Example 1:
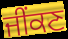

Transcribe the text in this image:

ਜੀਂਕਣ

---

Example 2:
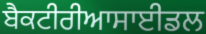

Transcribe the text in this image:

ਬੈਕਟੀਰੀਆਸਾਈਡਲ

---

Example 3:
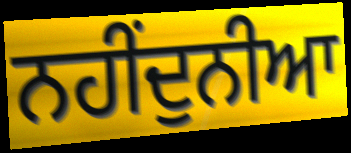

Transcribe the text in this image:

ਨਹੀਂਦੁਨੀਆ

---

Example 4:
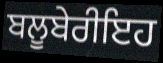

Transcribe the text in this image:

ਬਲੂਬੇਰੀਇਹ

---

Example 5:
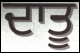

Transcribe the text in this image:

ਦਾਤੂ